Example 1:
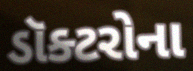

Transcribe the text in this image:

ડૉક્ટરોના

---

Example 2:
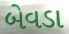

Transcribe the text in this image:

બેવડા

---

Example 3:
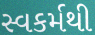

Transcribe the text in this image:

સ્વકર્મથી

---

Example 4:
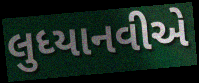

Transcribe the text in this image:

લુધ્યાનવીએ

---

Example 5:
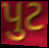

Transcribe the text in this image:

પુટ